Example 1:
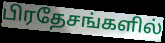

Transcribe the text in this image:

பிரதேசங்களில்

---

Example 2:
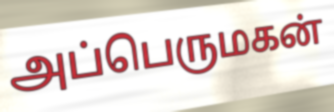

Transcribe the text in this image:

அப்பெருமகன்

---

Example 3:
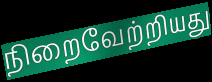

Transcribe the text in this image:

நிறைவேற்றியது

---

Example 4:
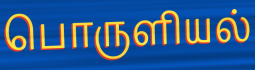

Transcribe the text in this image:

பொருளியல்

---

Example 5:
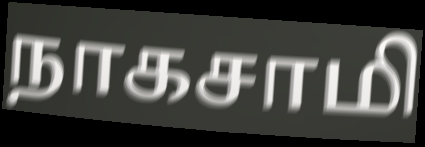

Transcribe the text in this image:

நாகசாமி